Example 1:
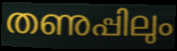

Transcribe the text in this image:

തണുപ്പിലും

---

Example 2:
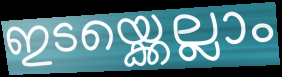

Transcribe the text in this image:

ഇടയ്ക്കെല്ലാം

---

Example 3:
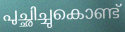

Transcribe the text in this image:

പുച്ഛിച്ചുകൊണ്ട്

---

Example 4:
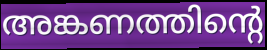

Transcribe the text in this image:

അങ്കണത്തിന്റെ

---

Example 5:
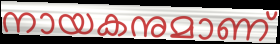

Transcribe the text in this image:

നായകനുമാണ്